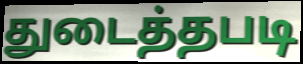
துடைத்தபடி